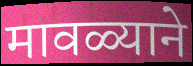
मावळ्याने